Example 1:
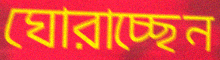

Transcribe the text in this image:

ঘোরাচ্ছেন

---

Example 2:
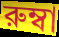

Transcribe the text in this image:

রুম্বা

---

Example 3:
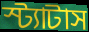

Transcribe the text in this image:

স্ট্যাটাস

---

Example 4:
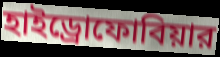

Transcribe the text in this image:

হাইড্রোফোবিয়ার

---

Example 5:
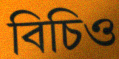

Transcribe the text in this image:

বিচিও